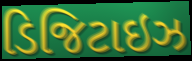
ડિજિટાઇઝ